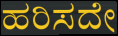
ಹರಿಸದೇ